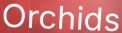
Orchids